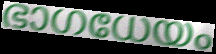
ഭാഗധേയം